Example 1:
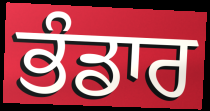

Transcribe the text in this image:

ਭੰਡਾਰ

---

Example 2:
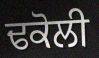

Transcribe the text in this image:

ਢਕੋਲੀ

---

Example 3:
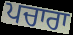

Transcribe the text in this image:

ਪਚਾਰਾ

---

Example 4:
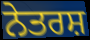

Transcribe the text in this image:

ਨੇਤਰਸ਼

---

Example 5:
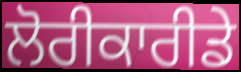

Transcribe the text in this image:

ਲੋਰੀਕਾਰੀਡੇ